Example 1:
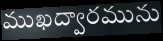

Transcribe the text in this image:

ముఖద్వారమును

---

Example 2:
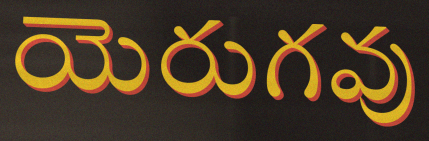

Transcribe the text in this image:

యెరుగవు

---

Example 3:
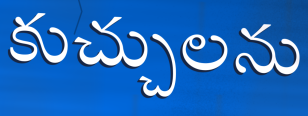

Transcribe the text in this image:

కుచ్చులను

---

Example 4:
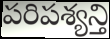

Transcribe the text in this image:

పరిపశ్యన్తి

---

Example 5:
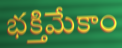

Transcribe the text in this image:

భక్తిమేకాం